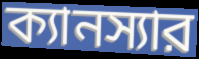
ক্যানস্যার